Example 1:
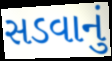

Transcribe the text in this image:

સડવાનું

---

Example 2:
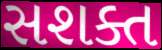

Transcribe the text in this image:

સશક્ત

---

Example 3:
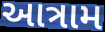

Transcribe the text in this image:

આત્રામ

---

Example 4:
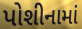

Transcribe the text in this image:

પોશીનામાં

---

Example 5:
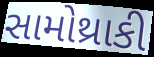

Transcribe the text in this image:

સામોથ્રાકી